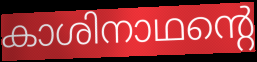
കാശിനാഥന്റെ